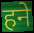
हने